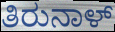
ತಿರುನಾಳ್